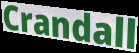
Crandall